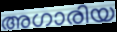
അഗാരിയ